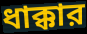
ধাক্কার